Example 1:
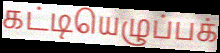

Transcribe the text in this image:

கட்டியெழுப்பக்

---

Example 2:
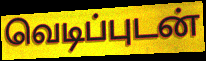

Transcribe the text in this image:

வெடிப்புடன்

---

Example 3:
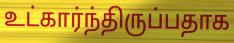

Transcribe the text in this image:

உட்கார்ந்திருப்பதாக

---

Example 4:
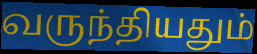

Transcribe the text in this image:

வருந்தியதும்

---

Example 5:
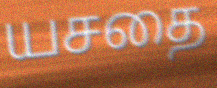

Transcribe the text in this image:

யசதை